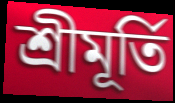
শ্রীমূর্তি